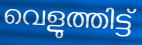
വെളുത്തിട്ട്